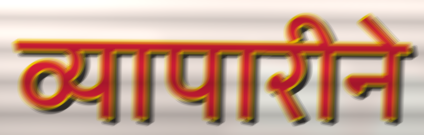
व्यापारीने